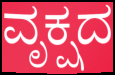
ವೃಕ್ಷದ